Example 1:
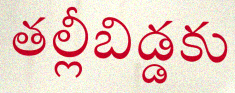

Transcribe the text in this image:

తల్లీబిడ్డకు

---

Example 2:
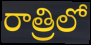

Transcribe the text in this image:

రాత్రిలో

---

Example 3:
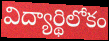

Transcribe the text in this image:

విద్యార్థిలోకం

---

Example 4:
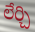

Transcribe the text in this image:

లేర్చి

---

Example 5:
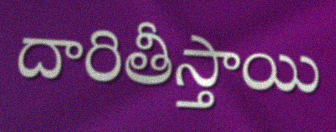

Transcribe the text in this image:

దారితీస్తాయి